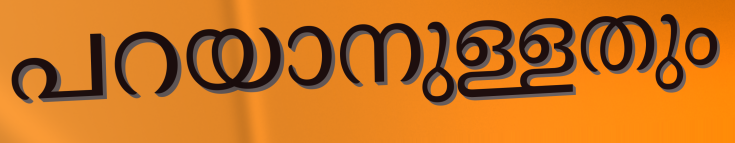
പറയാനുള്ളതും